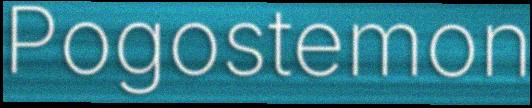
Pogostemon